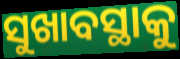
ସୁଖାବସ୍ଥାକୁ